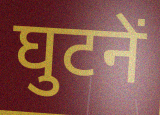
घुटनें